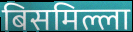
बिसमिल्ला